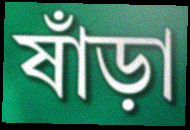
ষাঁড়া